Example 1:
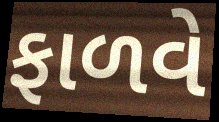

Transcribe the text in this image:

ફાળવે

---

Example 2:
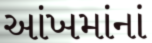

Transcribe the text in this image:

આંખમાંનાં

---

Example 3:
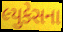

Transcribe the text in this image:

લ્યુકેસના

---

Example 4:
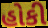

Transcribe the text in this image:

હોકી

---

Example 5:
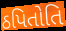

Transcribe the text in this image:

ઠપિતોતિ